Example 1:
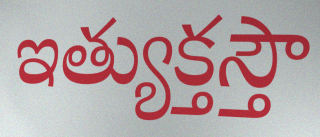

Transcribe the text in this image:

ఇత్యుక్తస్తౌ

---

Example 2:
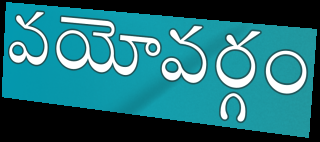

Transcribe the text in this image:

వయోవర్గం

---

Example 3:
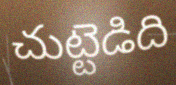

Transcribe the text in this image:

చుట్టెడిది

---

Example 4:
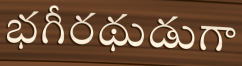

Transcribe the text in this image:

భగీరథుడుగా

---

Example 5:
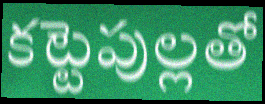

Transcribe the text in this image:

కట్టెపుల్లతో